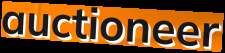
auctioneer